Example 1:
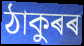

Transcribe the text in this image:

ঠাকুৰৰ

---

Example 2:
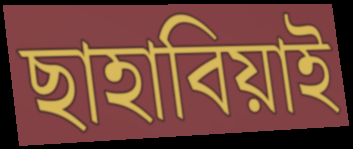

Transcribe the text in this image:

ছাহাবিয়াই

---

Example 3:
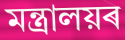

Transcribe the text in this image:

মন্ত্ৰালয়ৰ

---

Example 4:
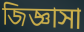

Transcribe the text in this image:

জিজ্ঞাসা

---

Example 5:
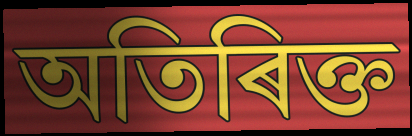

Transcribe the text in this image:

অতিৰিক্ত